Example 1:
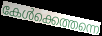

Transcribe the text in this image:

കേൾക്കെത്തന്നെ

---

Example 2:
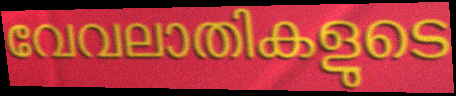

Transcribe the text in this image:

വേവലാതികളുടെ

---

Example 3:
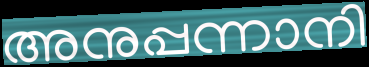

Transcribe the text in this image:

അനുപ്പന്നാനി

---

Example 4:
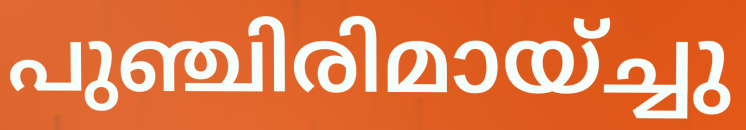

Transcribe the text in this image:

പുഞ്ചിരിമായ്ച്ചു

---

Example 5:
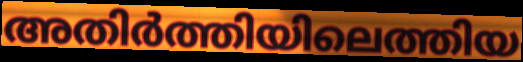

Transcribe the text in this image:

അതിർത്തിയിലെത്തിയ